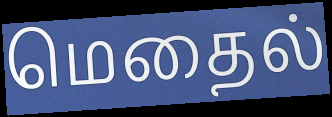
மெதைல்